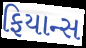
ફિયાન્સ